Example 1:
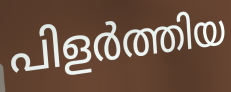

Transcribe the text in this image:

പിളർത്തിയ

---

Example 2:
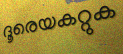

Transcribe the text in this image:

ദൂരെയകറ്റുക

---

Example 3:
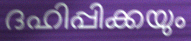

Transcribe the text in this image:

ദഹിപ്പിക്കയും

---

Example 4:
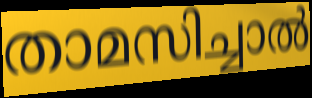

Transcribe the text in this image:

താമസിച്ചാൽ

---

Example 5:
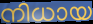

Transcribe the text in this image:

നിധായ